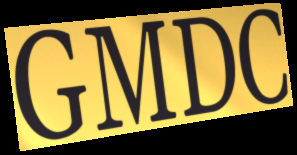
GMDC